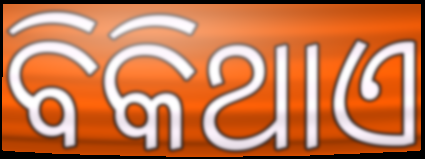
ବିକିଥାଏ